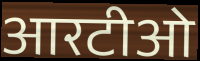
आरटीओ